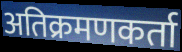
अतिक्रमणकर्ता